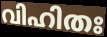
വിഹിതഃ